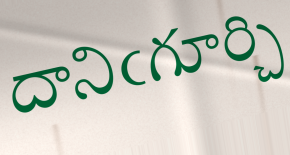
దానిఁగూర్చి